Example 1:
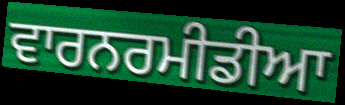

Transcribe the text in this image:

ਵਾਰਨਰਮੀਡੀਆ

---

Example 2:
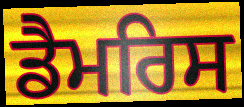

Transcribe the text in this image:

ਡੈਮਰਿਸ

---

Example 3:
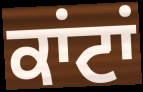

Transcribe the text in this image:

ਕਾਂਟਾਂ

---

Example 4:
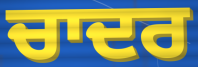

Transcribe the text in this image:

ਚਾਦਰ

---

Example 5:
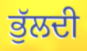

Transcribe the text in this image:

ਭੁੱਲਦੀ